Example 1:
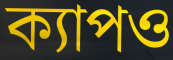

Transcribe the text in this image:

ক্যাপও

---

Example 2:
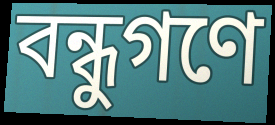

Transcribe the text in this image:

বন্ধুগণে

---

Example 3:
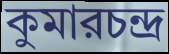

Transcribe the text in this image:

কুমারচন্দ্র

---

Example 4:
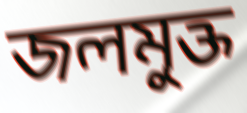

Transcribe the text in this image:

জলমুক্ত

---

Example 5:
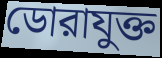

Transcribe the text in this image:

ডোরাযুক্ত